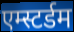
एम्स्टर्डम